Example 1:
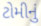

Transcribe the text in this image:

ટોમીનું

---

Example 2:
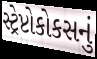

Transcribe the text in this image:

સ્ટ્રેપ્ટોકોકસનું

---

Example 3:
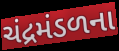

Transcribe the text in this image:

ચંદ્રમંડળના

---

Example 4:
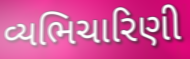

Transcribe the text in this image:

વ્યભિચારિણી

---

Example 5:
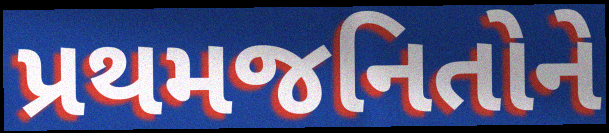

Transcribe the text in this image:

પ્રથમજનિતોને